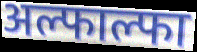
अल्फाल्फा